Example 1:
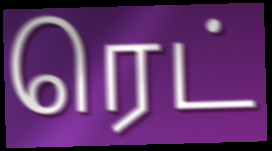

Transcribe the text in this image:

ரெட்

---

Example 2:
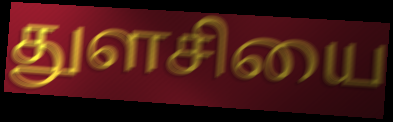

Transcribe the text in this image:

துளசியை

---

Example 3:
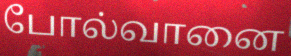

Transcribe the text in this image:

போல்வானை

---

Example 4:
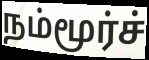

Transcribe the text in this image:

நம்மூர்ச்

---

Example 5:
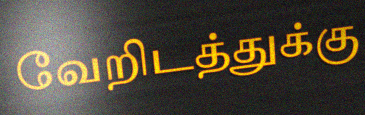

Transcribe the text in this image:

வேறிடத்துக்கு